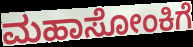
ಮಹಾಸೋಂಕಿಗೆ